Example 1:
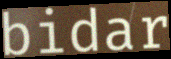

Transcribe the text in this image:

bidar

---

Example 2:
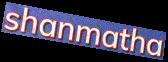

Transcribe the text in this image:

shanmatha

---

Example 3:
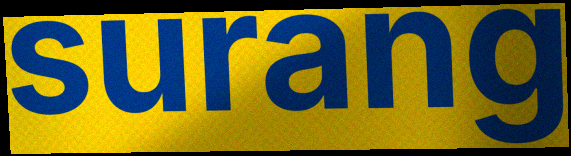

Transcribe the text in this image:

surang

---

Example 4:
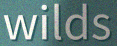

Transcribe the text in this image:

wilds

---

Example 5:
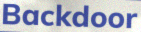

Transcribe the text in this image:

Backdoor